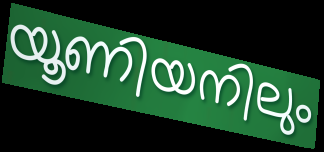
യൂണിയനിലും